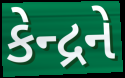
કેન્દ્રને